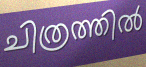
ചിത്രത്തിൽ